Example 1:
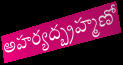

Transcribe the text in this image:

అహర్యద్బ్రహ్మణో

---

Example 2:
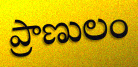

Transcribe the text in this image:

ప్రాణులం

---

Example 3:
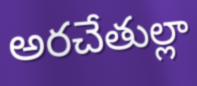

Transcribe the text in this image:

అరచేతుల్లా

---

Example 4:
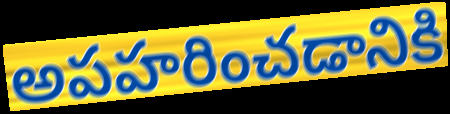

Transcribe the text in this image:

అపహరించడానికి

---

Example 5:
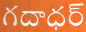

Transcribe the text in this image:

గదాధర్